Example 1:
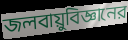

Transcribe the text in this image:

জলবায়ুবিজ্ঞানের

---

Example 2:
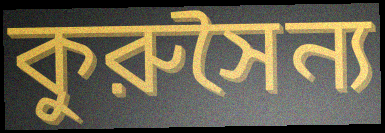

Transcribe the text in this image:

কুরুসৈন্য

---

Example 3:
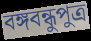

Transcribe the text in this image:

বঙ্গবন্ধুপুত্র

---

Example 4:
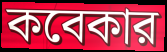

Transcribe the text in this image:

কবেকার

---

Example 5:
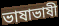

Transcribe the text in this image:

ভাষাভাষী